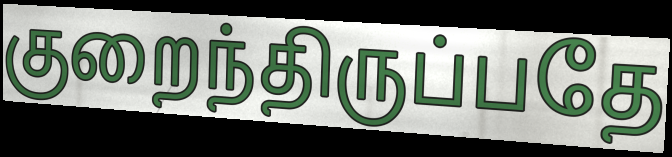
குறைந்திருப்பதே